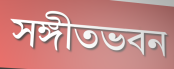
সঙ্গীতভবন